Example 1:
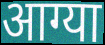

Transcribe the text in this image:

आग्या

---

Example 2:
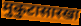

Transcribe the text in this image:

मुकुटासारखा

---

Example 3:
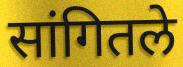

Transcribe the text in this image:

सांगितले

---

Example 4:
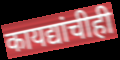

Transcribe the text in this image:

कायद्यांचीही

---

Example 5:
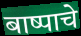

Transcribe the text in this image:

बाष्पाचे